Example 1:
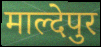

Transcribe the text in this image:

माल्देपुर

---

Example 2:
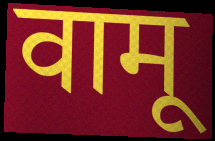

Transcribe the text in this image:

वामू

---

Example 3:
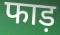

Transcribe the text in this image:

फाड़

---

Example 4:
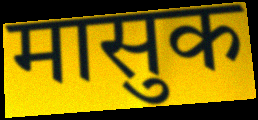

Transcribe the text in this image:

मासुक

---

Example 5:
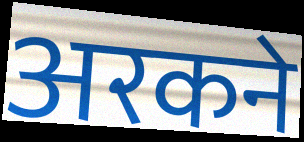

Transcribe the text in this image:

अरकने